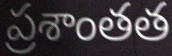
ప్రశాంతత